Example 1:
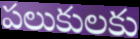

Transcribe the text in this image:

పలుకులకు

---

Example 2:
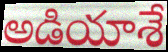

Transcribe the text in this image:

అడియాశే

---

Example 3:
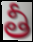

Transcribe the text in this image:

తీ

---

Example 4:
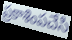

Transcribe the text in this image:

ప్రకాశింపచేసి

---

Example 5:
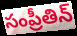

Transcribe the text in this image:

సంప్రీతిన్